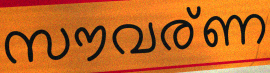
സൗവര്ണ